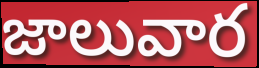
జాలువార